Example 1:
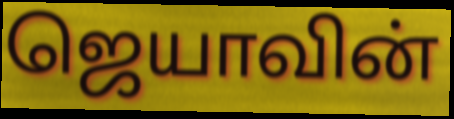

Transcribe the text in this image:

ஜெயாவின்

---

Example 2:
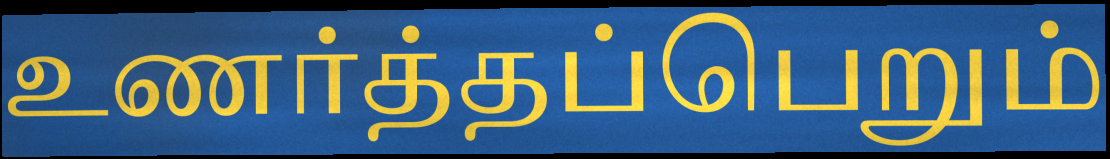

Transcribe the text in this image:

உணர்த்தப்பெறும்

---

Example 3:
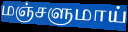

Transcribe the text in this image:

மஞ்சளுமாய்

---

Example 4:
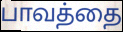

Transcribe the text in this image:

பாவத்தை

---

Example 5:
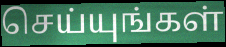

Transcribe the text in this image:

செய்யுங்கள்